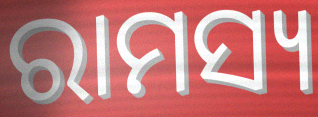
ରାମସ୍ୟ